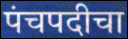
पंचपदीचा